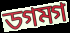
ডগমগ